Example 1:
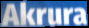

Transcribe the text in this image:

Akrura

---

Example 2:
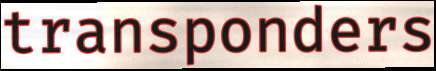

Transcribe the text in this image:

transponders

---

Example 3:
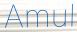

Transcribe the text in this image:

Amul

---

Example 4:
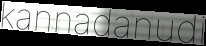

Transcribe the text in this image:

kannadanudi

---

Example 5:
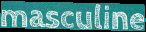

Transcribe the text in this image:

masculine